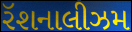
રૅશનાલીઝમ